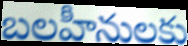
బలహీనులకు